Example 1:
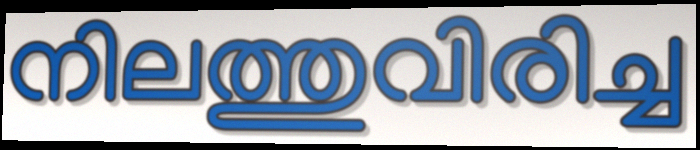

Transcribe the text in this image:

നിലത്തുവിരിച്ച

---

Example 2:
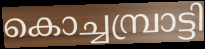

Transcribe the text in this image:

കൊച്ചമ്പ്രാട്ടി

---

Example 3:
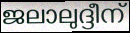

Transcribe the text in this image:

ജലാലുദ്ദീന്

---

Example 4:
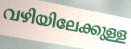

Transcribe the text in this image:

വഴിയിലേക്കുള്ള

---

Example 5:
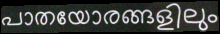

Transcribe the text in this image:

പാതയോരങ്ങളിലും